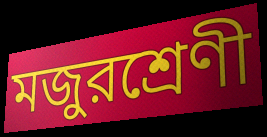
মজুরশ্রেণী